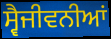
ਸ੍ਵੈਜੀਵਨੀਆਂ